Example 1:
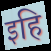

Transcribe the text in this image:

इहि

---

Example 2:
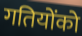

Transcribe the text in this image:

गतियोंको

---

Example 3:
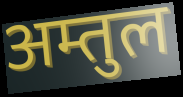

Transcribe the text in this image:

अम्तुल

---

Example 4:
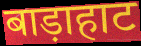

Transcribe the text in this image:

बाड़ाहाट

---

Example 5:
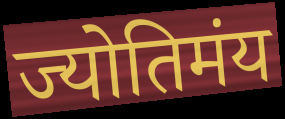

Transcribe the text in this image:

ज्योतिमंय